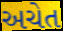
અચેત